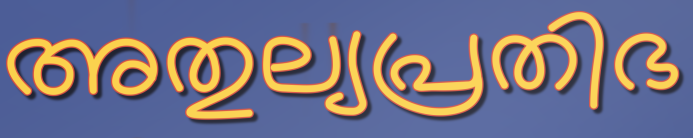
അതുല്യപ്രതിഭ